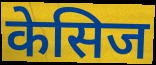
केसिज